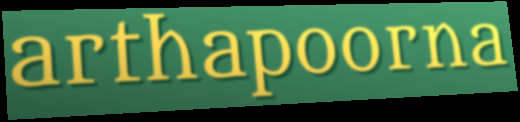
arthapoorna